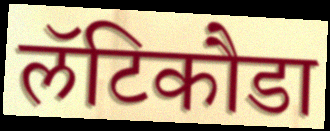
लॅटिकौडा